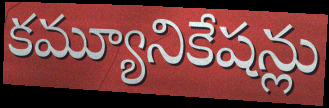
కమ్యూనికేషన్లు